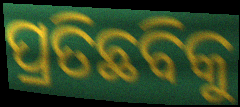
ପ୍ରତିଛବିକୁ